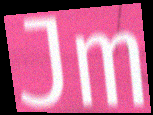
Jm